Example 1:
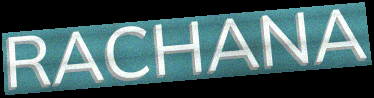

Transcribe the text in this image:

RACHANA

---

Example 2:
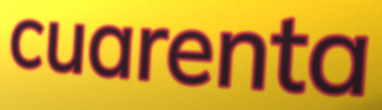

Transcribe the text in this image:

cuarenta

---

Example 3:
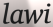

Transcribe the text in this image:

lawi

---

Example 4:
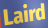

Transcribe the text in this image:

Laird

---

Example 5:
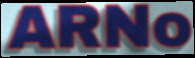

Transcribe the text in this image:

ARNo